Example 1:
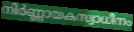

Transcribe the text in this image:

നിർണ്ണായകസ്വാധീനം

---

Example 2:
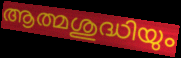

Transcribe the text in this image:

ആത്മശുദ്ധിയും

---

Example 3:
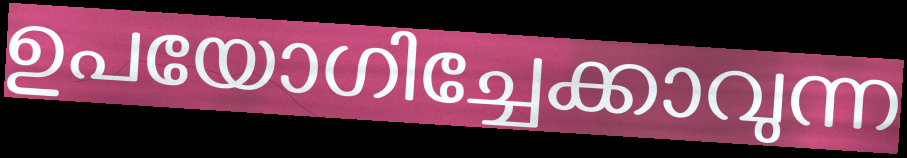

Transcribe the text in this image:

ഉപയോഗിച്ചേക്കാവുന്ന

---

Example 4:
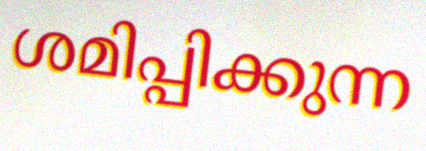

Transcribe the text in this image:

ശമിപ്പിക്കുന്ന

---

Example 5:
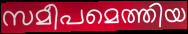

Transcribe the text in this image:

സമീപമെത്തിയ